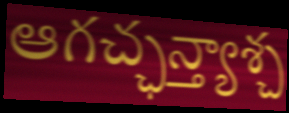
ఆగచ్ఛన్త్యాశ్చ